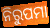
ନିରୁପମା